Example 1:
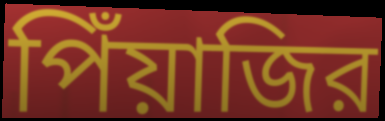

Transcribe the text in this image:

পিঁয়াজির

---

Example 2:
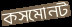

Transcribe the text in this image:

কসমোনট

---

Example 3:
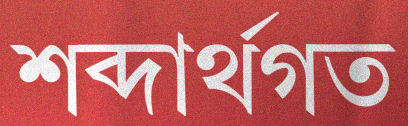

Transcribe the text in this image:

শব্দার্থগত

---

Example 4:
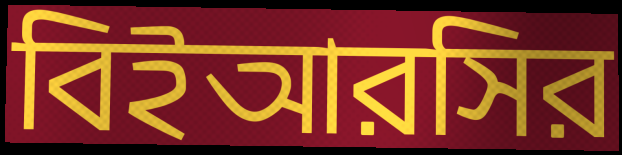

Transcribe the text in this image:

বিইআরসির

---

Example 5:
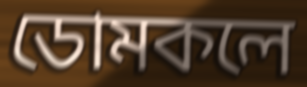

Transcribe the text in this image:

ডোমকলে